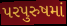
પરપુરુષમાં